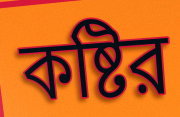
কষ্টির